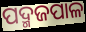
ପଦ୍ମଜପାଳ